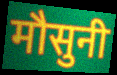
मौसुनी